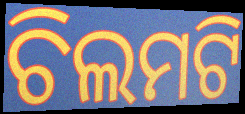
ଚିଲମଟି